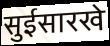
सुईसारखे